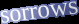
sorrows